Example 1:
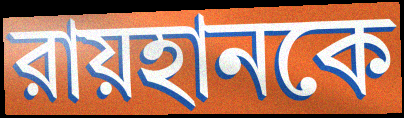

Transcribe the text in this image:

রায়হানকে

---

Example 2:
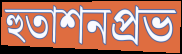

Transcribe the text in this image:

হুতাশনপ্রভ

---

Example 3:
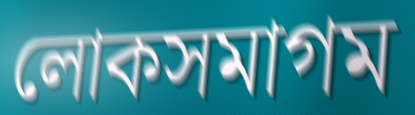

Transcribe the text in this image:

লোকসমাগম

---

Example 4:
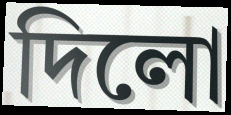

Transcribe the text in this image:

দিলো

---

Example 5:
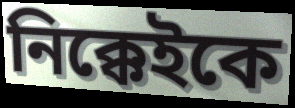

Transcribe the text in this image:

নিক্কেইকে